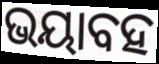
ଭୟାବହ